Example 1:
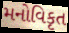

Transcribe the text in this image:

મનોવિકૃત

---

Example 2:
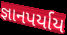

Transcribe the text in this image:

જ્ઞાનપર્યાય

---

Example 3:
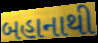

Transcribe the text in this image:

બહાનાથી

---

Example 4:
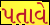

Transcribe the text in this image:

પતાવે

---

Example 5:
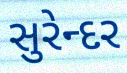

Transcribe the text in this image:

સુરેન્દર